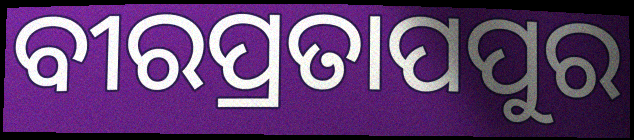
ବୀରପ୍ରତାପପୁର